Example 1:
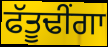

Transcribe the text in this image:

ਫੱਤੂਢੀਂਗਾ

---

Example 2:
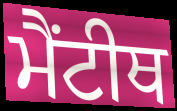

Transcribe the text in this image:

ਮੈਂਟੀਥ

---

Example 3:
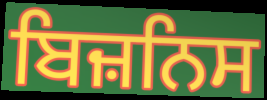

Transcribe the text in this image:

ਬਿਜ਼ਨਿਸ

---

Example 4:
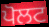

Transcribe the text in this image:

ਪੋਲਟ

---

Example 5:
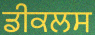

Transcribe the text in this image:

ਡੀਕਲਸ